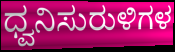
ಧ್ವನಿಸುರುಳಿಗಳ